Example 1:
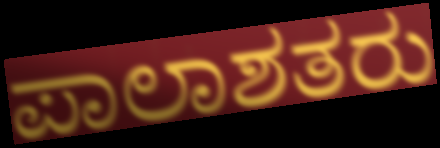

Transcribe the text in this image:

ಪಾಲಾಶತರು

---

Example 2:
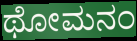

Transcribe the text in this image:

ಥೋಮನಂ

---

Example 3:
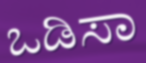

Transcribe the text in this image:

ಒಡಿಸಾ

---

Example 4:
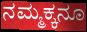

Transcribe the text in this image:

ನಮ್ಮಕ್ಕನೂ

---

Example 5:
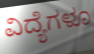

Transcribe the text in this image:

ವಿದ್ಯೆಗಳೂ